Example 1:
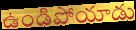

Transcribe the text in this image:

ఉండిపోయాడు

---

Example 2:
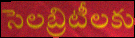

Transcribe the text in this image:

సెలబ్రిటీలకు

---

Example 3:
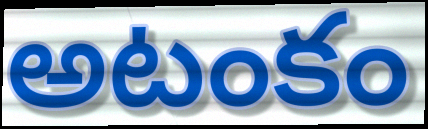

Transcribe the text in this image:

అటంకం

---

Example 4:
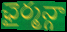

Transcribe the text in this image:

ఛైర్మన్గా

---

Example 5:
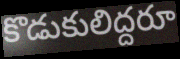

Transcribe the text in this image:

కొడుకులిద్దరూ